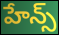
హేన్స్